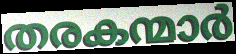
തരകന്മാർ